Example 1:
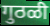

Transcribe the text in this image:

गुठळी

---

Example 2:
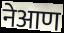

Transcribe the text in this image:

नेआण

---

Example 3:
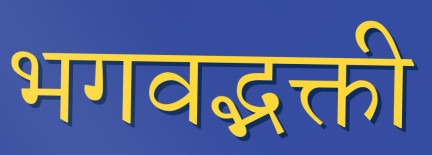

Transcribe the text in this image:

भगवद्भक्ती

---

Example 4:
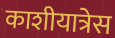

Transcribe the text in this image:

काशीयात्रेस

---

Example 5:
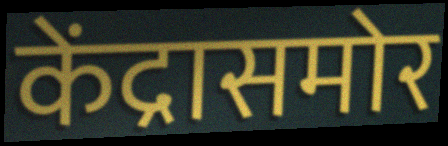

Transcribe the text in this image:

केंद्रासमोर